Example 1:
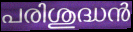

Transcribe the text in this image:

പരിശുദ്ധൻ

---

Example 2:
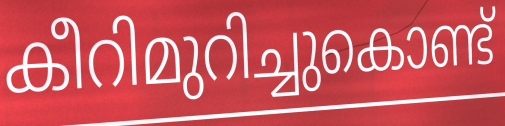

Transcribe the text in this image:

കീറിമുറിച്ചുകൊണ്ട്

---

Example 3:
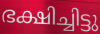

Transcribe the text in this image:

ഭക്ഷിച്ചിട്ടു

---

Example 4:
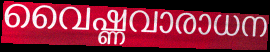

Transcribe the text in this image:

വൈഷ്ണവാരാധന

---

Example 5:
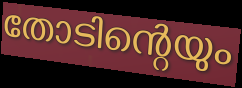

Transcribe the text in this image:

തോടിന്റെയും